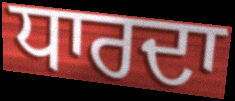
ਧਾਰਦਾ